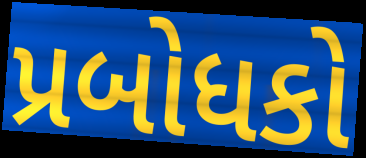
પ્રબોધકો